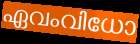
ഏവംവിധോ